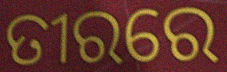
ତୀରରେ